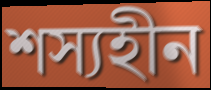
শস্যহীন